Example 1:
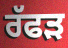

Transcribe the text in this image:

ਰੱਫੜ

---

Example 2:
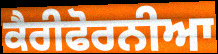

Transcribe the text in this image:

ਕੈਰੀਫੋਰਨੀਆ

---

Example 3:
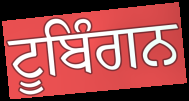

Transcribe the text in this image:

ਟੂਬਿੰਗਨ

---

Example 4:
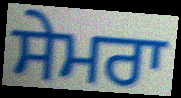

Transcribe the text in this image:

ਸੇਮਰਾ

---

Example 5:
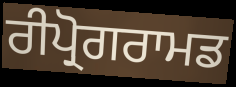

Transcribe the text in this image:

ਰੀਪ੍ਰੋਗਰਾਮਡ